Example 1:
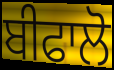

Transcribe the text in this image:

ਬੀਫਾਲੋ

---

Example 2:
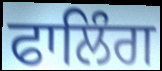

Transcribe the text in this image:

ਫਾਲਿੰਗ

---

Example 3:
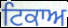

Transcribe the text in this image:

ਟਿਕਾਅ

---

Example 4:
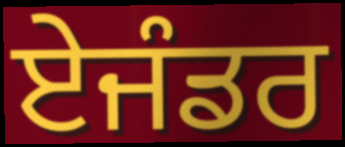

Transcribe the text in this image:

ਏਜੰਡਰ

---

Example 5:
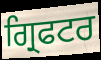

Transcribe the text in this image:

ਗ੍ਰਿਫਟਰ